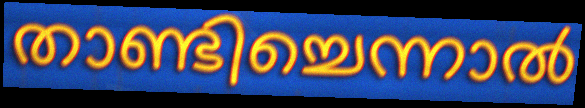
താണ്ടിച്ചെന്നാൽ